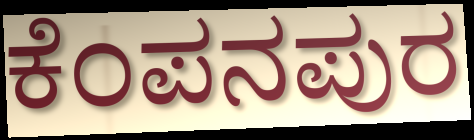
ಕೆಂಪನಪುರ